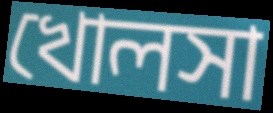
খোলসা